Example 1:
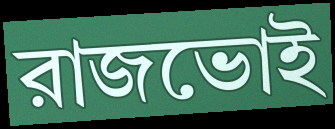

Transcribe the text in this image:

রাজভোই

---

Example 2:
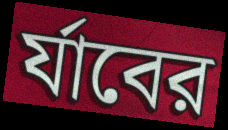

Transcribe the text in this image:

র্যাবের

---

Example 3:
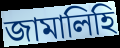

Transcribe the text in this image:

জামালিহি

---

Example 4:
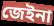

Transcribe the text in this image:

জেইনা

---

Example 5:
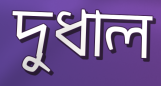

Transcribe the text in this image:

দুধাল